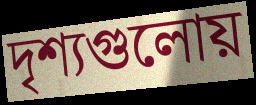
দৃশ্যগুলোয়